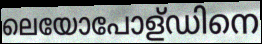
ലെയോപോള്ഡിനെ